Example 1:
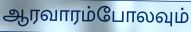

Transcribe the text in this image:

ஆரவாரம்போலவும்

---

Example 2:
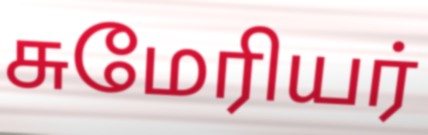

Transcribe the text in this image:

சுமேரியர்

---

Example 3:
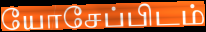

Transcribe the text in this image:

யோசேப்பிடம்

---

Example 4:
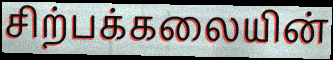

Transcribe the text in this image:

சிற்பக்கலையின்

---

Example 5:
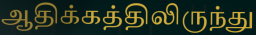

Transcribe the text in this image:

ஆதிக்கத்திலிருந்து